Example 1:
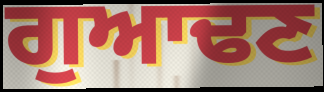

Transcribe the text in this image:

ਗੁਆਢਣ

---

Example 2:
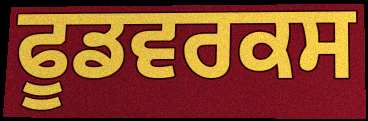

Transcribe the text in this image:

ਫੂਡਵਰਕਸ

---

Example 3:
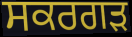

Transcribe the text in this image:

ਸਕਰਗੜ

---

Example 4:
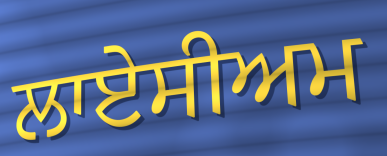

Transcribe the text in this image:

ਲਾਏਸੀਅਮ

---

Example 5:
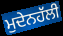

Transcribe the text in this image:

ਮੁਦੇਨਹੱਲੀ